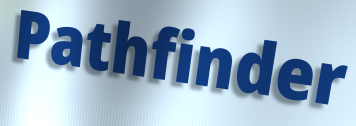
Pathfinder